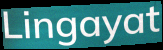
Lingayat